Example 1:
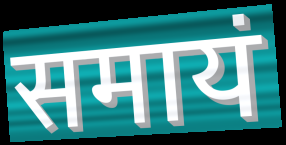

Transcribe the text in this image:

समायं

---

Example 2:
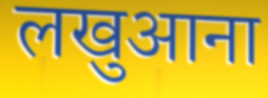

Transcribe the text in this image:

लखुआना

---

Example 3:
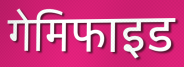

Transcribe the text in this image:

गेमिफाइड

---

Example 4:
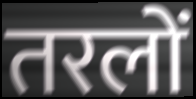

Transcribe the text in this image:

तरलों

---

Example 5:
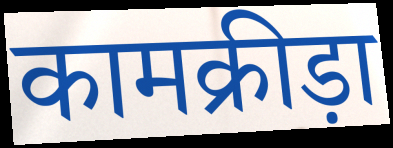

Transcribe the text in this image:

कामक्रीड़ा